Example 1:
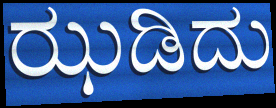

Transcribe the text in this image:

ಝಡಿದು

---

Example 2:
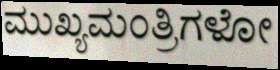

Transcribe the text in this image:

ಮುಖ್ಯಮಂತ್ರಿಗಳೋ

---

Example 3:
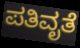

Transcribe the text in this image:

ಪತಿವೃತೆ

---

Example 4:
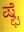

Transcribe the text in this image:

ಷ್ಟೆ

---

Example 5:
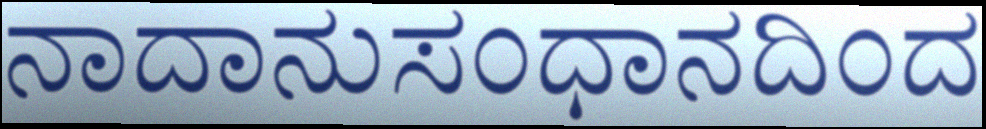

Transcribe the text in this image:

ನಾದಾನುಸಂಧಾನದಿಂದ